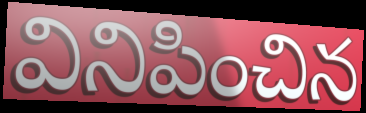
వినిపించిన